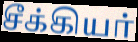
சீக்கியர்